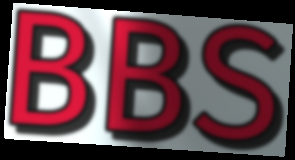
BBS